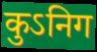
कुऽनिग